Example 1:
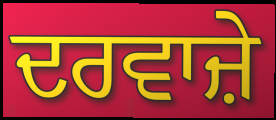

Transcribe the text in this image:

ਦਰਵਾਜ਼ੇ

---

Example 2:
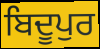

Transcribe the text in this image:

ਬਿਦੂਪੁਰ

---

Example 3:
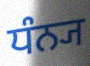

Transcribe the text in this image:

ਧੰਨ੍ਯ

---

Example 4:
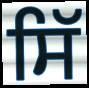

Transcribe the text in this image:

ਸਿੱ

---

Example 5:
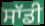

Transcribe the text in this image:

ਸਾੱਡੀ